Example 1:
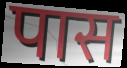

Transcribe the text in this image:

पास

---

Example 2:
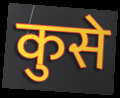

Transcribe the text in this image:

कुसे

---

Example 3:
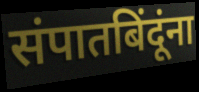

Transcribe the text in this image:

संपातबिंदूंना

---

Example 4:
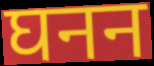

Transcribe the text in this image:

घनन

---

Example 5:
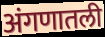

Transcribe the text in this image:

अंगणातली